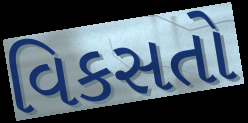
વિકસતો